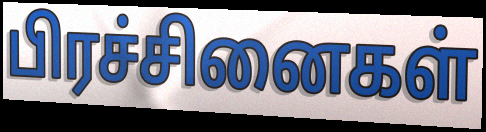
பிரச்சினைகள்